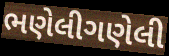
ભણેલીગણેલી